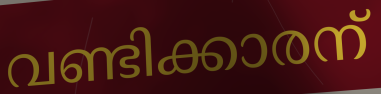
വണ്ടിക്കാരന്